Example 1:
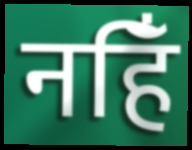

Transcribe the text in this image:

नहिँ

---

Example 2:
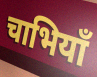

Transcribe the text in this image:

चाभियाँ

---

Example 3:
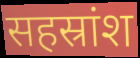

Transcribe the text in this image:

सहस्रांश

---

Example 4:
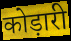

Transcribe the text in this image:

कोड़ारी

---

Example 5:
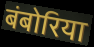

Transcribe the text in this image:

बंबोरिया